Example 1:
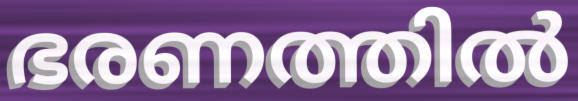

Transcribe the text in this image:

ഭരണത്തിൽ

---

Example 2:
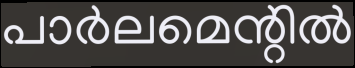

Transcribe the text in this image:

പാർലമെന്റിൽ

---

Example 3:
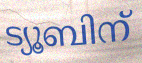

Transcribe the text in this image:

ട്യൂബിന്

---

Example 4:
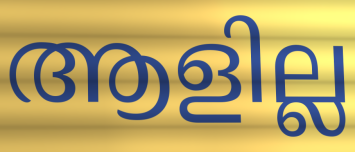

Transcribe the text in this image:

ആളില്ല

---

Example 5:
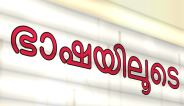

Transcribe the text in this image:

ഭാഷയിലൂടെ